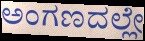
ಅಂಗಣದಲ್ಲೇ